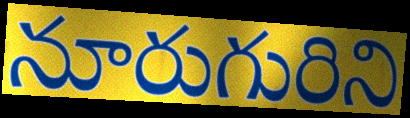
నూరుగురిని